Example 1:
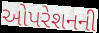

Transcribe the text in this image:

ઓપરેશનની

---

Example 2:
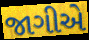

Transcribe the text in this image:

જાગીએ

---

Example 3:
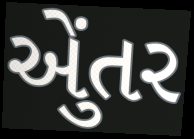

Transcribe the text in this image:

એુંતર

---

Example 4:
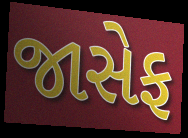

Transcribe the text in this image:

જાસેફ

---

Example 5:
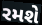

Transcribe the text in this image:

રમશે